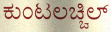
ಕುಂಟಲಚ್ಚಿಲ್